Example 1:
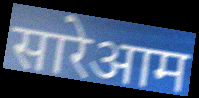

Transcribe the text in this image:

सारेआम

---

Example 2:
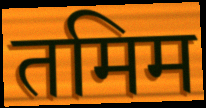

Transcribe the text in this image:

तमिम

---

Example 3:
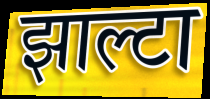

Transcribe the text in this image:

झाल्टा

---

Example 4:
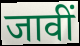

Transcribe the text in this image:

जावीं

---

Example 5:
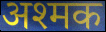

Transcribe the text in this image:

अश्मक